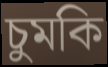
চুমকি